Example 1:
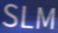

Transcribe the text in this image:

SLM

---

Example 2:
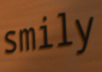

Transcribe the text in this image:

smily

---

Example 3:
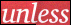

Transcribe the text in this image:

unless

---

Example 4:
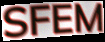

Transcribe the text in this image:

SFEM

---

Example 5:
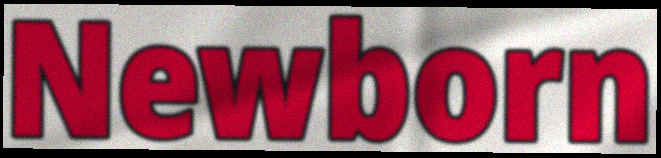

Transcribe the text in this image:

Newborn